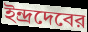
ইন্দ্রদেবের